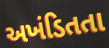
અખંડિતતા